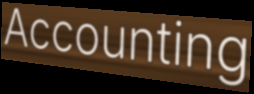
Accounting